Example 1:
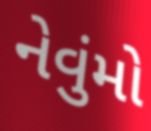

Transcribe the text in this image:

નેવુંમો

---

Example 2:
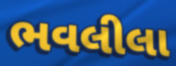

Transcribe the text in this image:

ભવલીલા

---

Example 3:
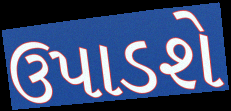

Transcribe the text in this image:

ઉપાડશે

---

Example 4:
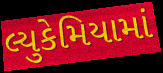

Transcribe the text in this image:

લ્યુકેમિયામાં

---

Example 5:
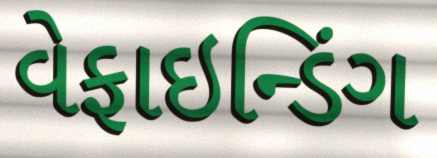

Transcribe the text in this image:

વેફાઇન્ડિંગ